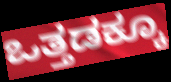
ಒತ್ತಡಕ್ಕೂ